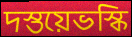
দস্তয়েভস্কি